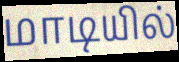
மாடியில்